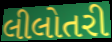
લીલોતરી